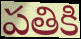
పతికి